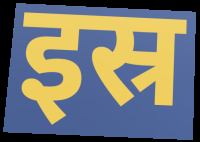
इस्र